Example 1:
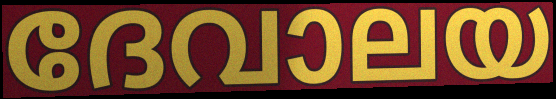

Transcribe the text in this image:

ദേവാലയ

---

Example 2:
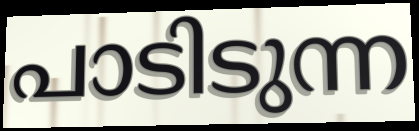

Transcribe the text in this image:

പാടിടുന്ന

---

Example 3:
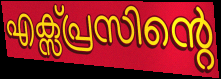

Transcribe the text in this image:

എക്സ്പ്രസിന്റെ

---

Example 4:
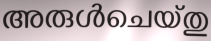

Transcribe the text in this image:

അരുൾചെയ്തു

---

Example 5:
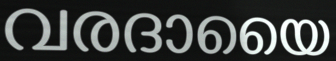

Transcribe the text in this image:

വരദായൈ